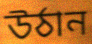
উঠান